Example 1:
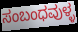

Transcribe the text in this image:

ಸಂಬಂಧವುಳ್ಳ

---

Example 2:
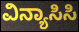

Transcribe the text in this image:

ವಿನ್ಯಾಸಿಸಿ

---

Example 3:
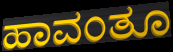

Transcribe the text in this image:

ಹಾವಂತೂ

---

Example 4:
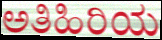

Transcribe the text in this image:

ಅತಿಹಿರಿಯ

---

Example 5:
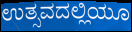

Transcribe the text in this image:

ಉತ್ಸವದಲ್ಲಿಯೂ